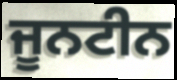
ਜੂਨਟੀਨ